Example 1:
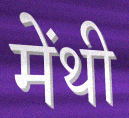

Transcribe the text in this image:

मेंथी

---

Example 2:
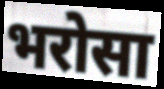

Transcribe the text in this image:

भरोसा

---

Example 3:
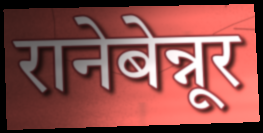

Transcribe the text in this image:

रानेबेन्नूर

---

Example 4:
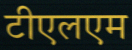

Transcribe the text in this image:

टीएलएम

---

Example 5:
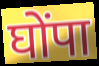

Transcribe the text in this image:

घोंपा